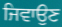
ਜਿਵਾਉਣ